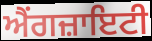
ਐਂਗਜ਼ਾਇਟੀ